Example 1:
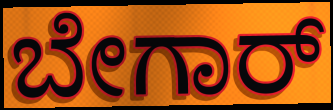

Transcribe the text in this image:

ಬೇಗಾರ್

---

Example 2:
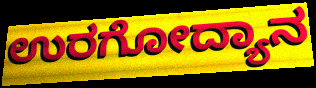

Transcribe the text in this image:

ಉರಗೋದ್ಯಾನ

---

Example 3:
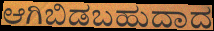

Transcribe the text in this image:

ಆಗಿಬಿಡಬಹುದಾದ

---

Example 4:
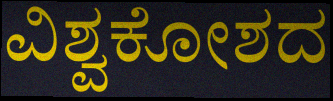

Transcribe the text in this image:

ವಿಶ್ವಕೋಶದ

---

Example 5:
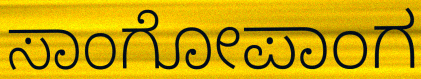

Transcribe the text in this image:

ಸಾಂಗೋಪಾಂಗ